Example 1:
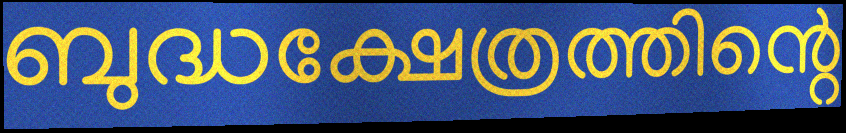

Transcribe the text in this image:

ബുദ്ധക്ഷേത്രത്തിന്റെ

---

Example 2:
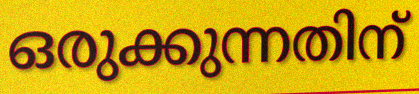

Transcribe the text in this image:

ഒരുക്കുന്നതിന്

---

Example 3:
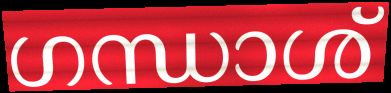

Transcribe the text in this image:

ഗന്ധാശ്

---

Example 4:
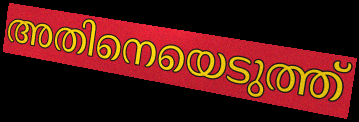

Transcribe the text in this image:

അതിനെയെടുത്ത്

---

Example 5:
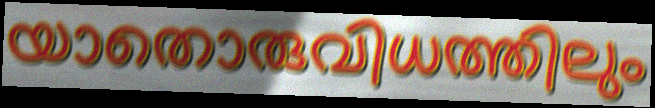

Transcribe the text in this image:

യാതൊരുവിധത്തിലും